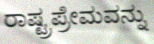
ರಾಷ್ಟ್ರಪ್ರೇಮವನ್ನು